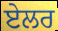
ਏਲਰ